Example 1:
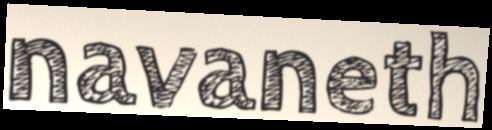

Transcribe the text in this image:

navaneth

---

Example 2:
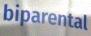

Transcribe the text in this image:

biparental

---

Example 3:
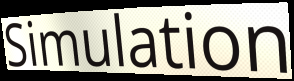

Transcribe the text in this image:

Simulation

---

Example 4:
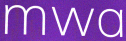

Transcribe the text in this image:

mwa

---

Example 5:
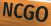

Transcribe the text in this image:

NCGO